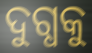
ଦୁଗ୍ଧକୁ